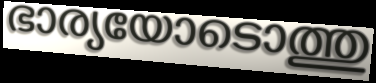
ഭാര്യയോടൊത്തു